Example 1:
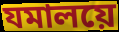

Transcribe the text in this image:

যমালয়ে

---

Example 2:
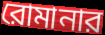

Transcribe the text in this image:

রোমানার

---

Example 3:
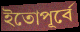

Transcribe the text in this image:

ইতোপূর্বে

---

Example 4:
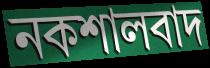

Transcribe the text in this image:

নকশালবাদ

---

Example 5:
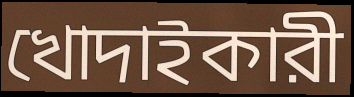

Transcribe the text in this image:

খোদাইকারী